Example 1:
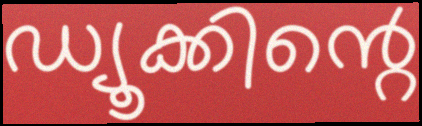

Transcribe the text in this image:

ഡ്യൂക്കിന്റെ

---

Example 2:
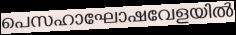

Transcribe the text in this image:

പെസഹാഘോഷവേളയിൽ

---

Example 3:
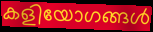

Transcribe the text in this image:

കളിയോഗങ്ങൾ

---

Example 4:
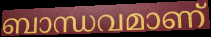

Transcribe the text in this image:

ബാന്ധവമാണ്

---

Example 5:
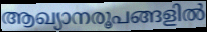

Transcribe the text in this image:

ആഖ്യാനരൂപങ്ങളിൽ